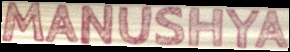
MANUSHYA